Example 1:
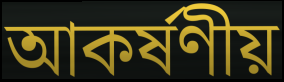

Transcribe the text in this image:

আকর্ষণীয়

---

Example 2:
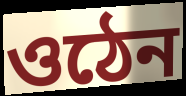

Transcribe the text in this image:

ওঠেন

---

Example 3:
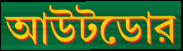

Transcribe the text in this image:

আউটডোর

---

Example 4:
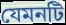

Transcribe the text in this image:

যেমনটি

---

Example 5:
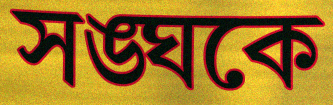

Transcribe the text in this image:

সঙ্ঘকে